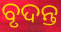
ବୃଦନ୍ତ